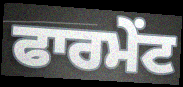
ਫਾਰਮੇਂਟ